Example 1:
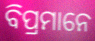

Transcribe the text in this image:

ବିପ୍ରମାନେ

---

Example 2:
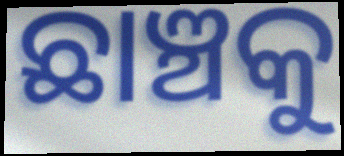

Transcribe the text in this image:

ଛାଞ୍ଚକୁ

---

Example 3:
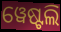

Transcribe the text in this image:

ୱେଷ୍ଟଲି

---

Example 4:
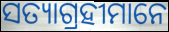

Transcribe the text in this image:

ସତ୍ୟାଗ୍ରହୀମାନେ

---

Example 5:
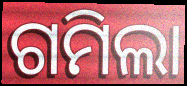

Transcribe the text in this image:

ଗମିଲା